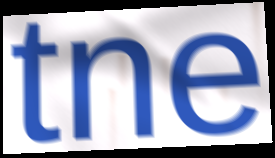
tne